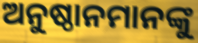
ଅନୁଷ୍ଠାନମାନଙ୍କୁ